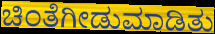
ಚಿಂತೆಗೀಡುಮಾಡಿತು